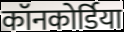
कॉनकोर्डिया